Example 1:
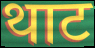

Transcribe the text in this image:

थाट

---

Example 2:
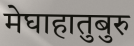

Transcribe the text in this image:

मेघाहातुबुरु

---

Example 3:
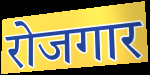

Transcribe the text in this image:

रोजगार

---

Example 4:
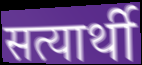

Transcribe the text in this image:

सत्यार्थी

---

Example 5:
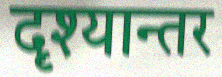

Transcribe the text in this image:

दृश्यान्तर